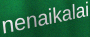
nenaikalai